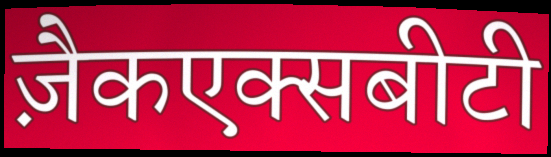
ज़ैकएक्सबीटी